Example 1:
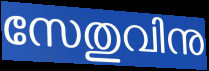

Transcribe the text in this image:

സേതുവിനു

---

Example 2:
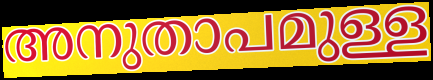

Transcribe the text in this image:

അനുതാപമുള്ള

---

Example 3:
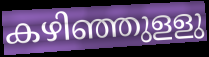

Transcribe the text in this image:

കഴിഞ്ഞുളളു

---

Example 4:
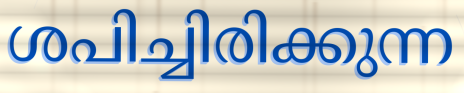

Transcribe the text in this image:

ശപിച്ചിരിക്കുന്ന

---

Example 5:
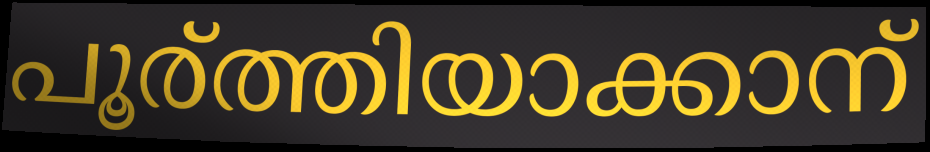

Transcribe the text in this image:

പൂര്ത്തിയാക്കാന്